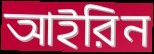
আইরিন